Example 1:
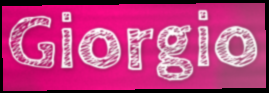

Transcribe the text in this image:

Giorgio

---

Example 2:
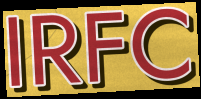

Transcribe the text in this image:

IRFC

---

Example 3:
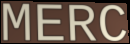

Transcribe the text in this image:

MERC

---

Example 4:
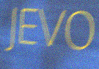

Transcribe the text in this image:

JEVO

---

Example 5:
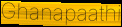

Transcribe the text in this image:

Ghanapaathi